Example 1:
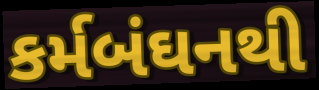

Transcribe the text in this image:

કર્મબંઘનથી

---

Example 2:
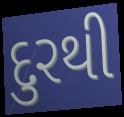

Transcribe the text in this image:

દુરથી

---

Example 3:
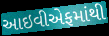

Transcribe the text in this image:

આઇવીએફમાંથી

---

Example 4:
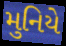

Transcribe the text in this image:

મુનિયે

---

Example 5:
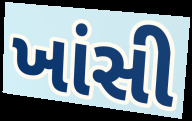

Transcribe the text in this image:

ખાંસી